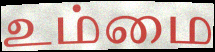
உம்மை